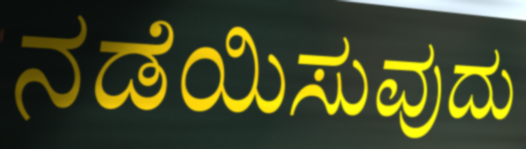
ನಡೆಯಿಸುವುದು